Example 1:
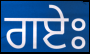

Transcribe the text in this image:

ਗਏਃ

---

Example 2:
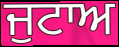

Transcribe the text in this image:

ਜੁਟਾਅ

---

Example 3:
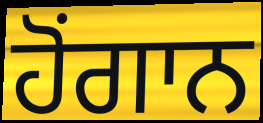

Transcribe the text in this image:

ਹੋਂਗਾਨ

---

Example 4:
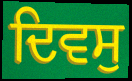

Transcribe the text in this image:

ਦਿਵਸੁ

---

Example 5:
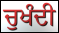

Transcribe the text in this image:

ਚੁਖੰਦੀ